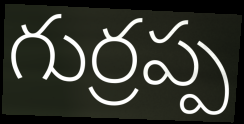
గుర్రప్ప